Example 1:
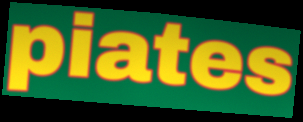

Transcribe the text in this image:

piates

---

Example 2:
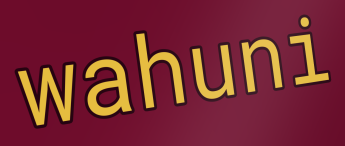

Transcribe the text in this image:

wahuni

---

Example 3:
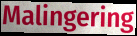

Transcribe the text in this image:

Malingering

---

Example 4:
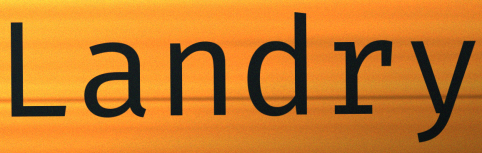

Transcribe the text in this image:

Landry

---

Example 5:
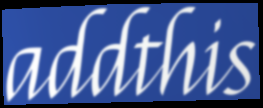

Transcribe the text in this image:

addthis